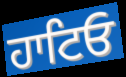
ਹਾਟਿਓ